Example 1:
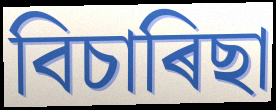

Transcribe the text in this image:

বিচাৰিছা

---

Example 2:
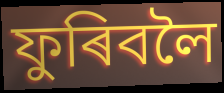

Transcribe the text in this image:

ফুৰিবলৈ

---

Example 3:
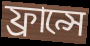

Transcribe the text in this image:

ফ্ৰান্সে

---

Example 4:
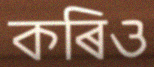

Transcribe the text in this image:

কৰিও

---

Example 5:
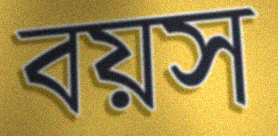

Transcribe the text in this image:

বয়স